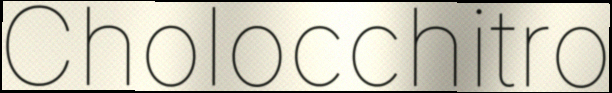
Cholocchitro